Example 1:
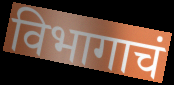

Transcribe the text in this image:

विभागाचं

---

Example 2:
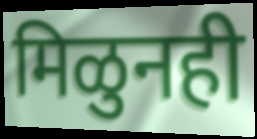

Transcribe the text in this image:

मिळुनही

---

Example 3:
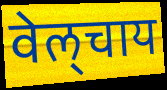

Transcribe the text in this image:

वेल्चाय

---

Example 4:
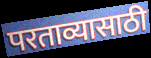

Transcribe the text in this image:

परताव्यासाठी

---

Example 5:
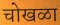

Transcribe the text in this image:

चोखळा